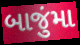
બાજુંમા